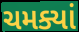
ચમક્યાં